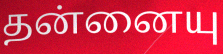
தன்னையு